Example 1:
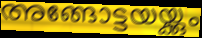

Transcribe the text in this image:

അങ്ങോട്ടയയ്ക്കും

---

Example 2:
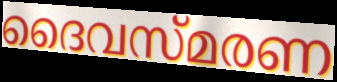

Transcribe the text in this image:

ദൈവസ്മരണ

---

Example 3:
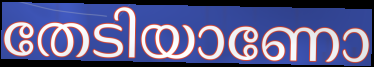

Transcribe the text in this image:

തേടിയാണോ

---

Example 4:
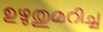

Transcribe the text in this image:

ഉഴുതുമറിച്ച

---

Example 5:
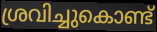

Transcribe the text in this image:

ശ്രവിച്ചുകൊണ്ട്